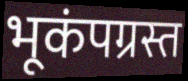
भूकंपग्रस्त